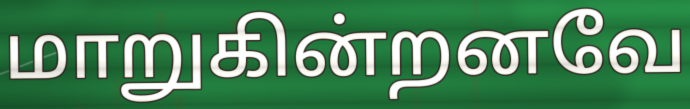
மாறுகின்றனவே